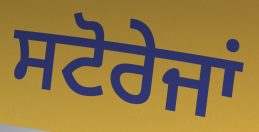
ਸਟੋਰੇਜਾਂ